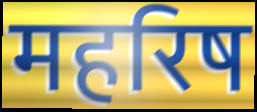
महरिष